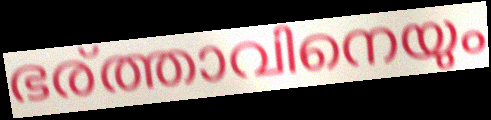
ഭര്ത്താവിനെയും